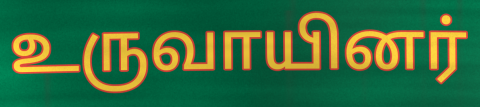
உருவாயினர்